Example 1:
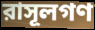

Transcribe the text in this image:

রাসূলগণ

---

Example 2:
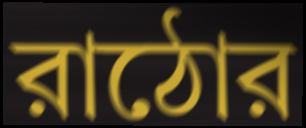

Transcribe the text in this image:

রাঠোর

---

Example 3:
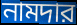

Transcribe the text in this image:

নামদার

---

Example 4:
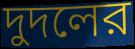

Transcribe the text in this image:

দুদলের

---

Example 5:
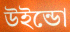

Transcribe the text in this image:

উইন্ডো